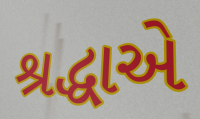
શ્રદ્ધાએ